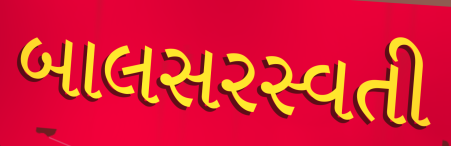
બાલસરસ્વતી